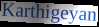
Karthigeyan